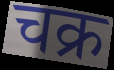
चक्र